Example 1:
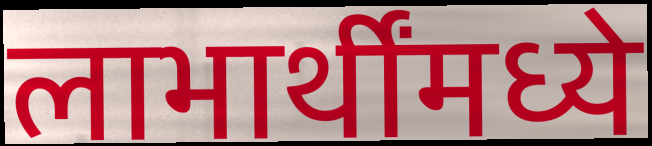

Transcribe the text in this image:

लाभार्थींमध्ये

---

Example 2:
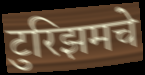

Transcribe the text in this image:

टुरिझमचे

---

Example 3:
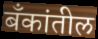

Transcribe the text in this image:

बॅंकांतील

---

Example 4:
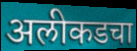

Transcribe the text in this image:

अलीकडचा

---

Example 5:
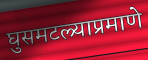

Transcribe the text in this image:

घुसमटल्याप्रमाणे